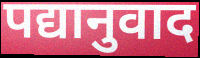
पद्यानुवाद